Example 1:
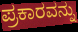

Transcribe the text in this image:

ಪ್ರಕಾರವನ್ನು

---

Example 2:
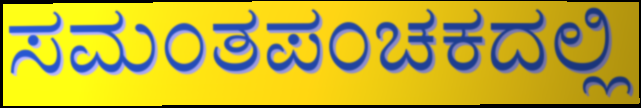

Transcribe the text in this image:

ಸಮಂತಪಂಚಕದಲ್ಲಿ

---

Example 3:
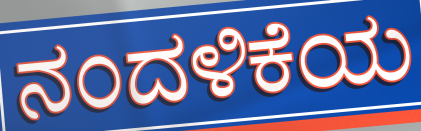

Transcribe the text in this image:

ನಂದಳಿಕೆಯ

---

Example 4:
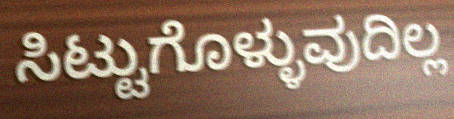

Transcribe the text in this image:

ಸಿಟ್ಟುಗೊಳ್ಳುವುದಿಲ್ಲ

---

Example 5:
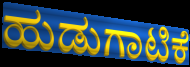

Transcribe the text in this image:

ಹುಡುಗಾಟಿಕೆ